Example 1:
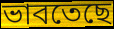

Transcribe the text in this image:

ভাবতেছে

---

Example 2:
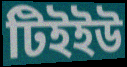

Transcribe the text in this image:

টিইইউ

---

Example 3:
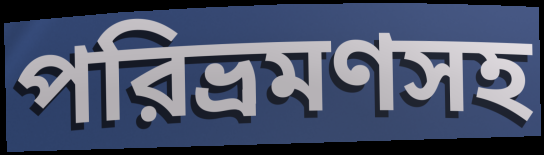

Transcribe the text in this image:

পরিভ্রমণসহ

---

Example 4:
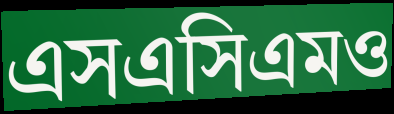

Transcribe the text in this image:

এসএসিএমও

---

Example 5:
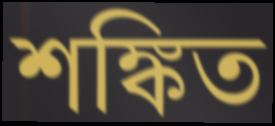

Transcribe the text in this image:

শঙ্কিত